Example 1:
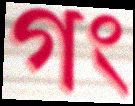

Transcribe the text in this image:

গং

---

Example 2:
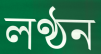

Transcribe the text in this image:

লণ্ঠন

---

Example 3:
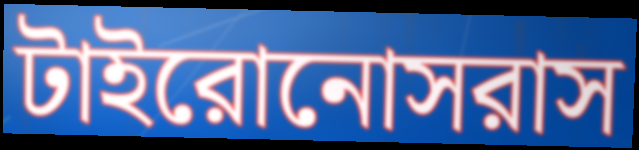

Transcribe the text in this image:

টাইরোনোসরাস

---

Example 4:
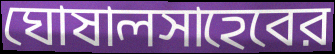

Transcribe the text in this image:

ঘোষালসাহেবের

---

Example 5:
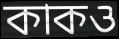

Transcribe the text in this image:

কাকও